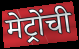
मेट्रोंची